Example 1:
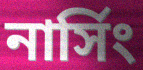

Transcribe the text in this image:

নার্সিং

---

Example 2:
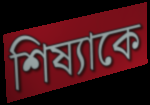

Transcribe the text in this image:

শিষ্যাকে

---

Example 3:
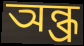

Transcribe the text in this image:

অন্ধ্র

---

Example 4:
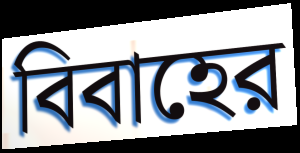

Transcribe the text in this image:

বিবাহের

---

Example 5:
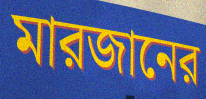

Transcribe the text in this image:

মারজানের